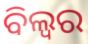
ବିଲ୍ୱର